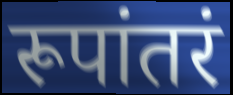
रूपांतरं